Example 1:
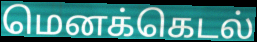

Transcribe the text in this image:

மெனக்கெடல்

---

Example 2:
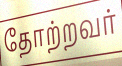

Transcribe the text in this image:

தோற்றவர்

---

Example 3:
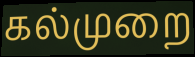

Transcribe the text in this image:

கல்முறை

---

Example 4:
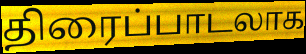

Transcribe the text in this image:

திரைப்பாடலாக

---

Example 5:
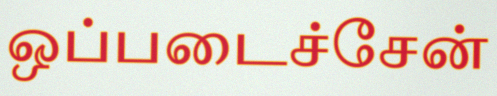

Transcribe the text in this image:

ஒப்படைச்சேன்